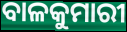
ବାଳକୁମାରୀ